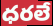
ధరలే